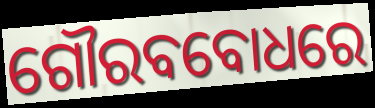
ଗୌରବବୋଧରେ